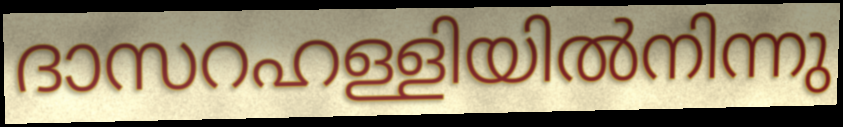
ദാസറഹള്ളിയിൽനിന്നു